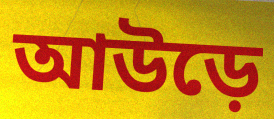
আউড়ে